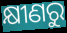
କ୍ଷୀଣରୁ